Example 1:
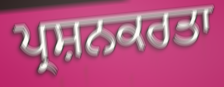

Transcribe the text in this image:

ਪ੍ਰਸ਼ਨਕਰਤਾ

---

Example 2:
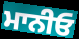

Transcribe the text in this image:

ਮਾਨੀਓ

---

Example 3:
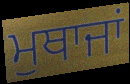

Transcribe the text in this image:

ਮੁਥਾਜਾਂ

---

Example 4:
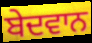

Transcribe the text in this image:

ਬੇਦਵਾਨ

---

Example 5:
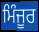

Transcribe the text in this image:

ਮਿੰਜੂਰ